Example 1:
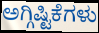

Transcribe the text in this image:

ಅಗ್ಗಿಷ್ಟಿಕೆಗಳು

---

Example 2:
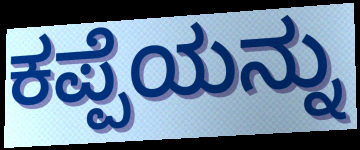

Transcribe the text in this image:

ಕಪ್ಪೆಯನ್ನು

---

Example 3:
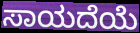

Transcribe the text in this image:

ಸಾಯದೆಯೆ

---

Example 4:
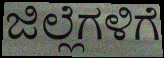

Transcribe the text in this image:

ಜಿಲ್ಲೆಗಳಿಗೆ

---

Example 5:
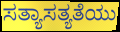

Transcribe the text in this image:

ಸತ್ಯಾಸತ್ಯತೆಯು